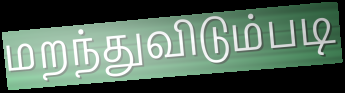
மறந்துவிடும்படி